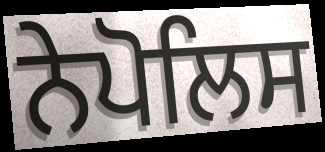
ਨੇਪੋਲਿਸ